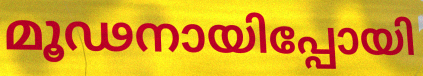
മൂഢനായിപ്പോയി